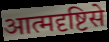
आत्मदृष्टिसे